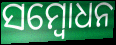
ସମ୍ବୋଧନ